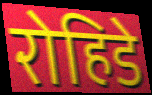
रोहिडे